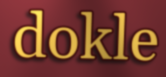
dokle